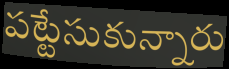
పట్టేసుకున్నారు